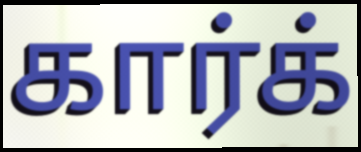
கார்க்